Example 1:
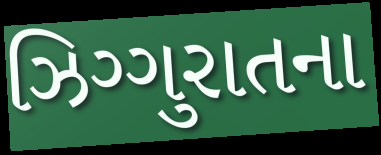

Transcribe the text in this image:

ઝિગ્ગુરાતના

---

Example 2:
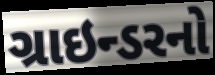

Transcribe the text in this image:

ગ્રાઇન્ડરનો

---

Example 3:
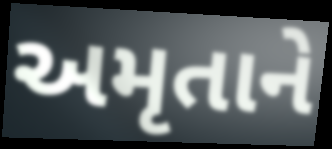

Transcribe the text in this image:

અમૃતાને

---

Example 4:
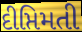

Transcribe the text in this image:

દીપ્તિમતી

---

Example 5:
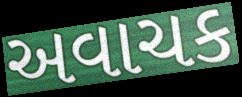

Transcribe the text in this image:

અવાચક